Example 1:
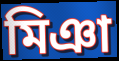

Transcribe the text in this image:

মিঞা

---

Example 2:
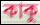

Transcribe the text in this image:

কাকু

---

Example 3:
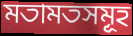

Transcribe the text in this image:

মতামতসমূহ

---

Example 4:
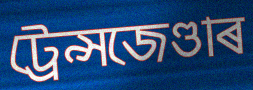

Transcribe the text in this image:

ট্ৰেন্সজেণ্ডাৰ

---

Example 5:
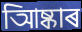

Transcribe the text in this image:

আিষ্কাৰ